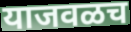
याजवळच